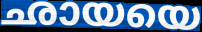
ഛായയെ